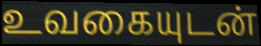
உவகையுடன்